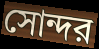
সোন্দর